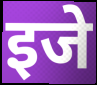
इजे